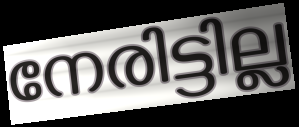
നേരിട്ടില്ല